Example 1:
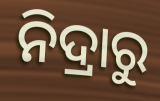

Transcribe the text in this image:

ନିଦ୍ରାରୁ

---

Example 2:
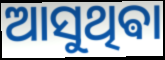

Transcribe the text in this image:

ଆସୁଥିଵା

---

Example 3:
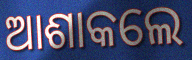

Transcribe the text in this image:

ଆଶାକଲେ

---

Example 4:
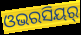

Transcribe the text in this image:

ଓଭରସିୟର୍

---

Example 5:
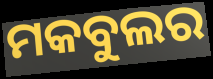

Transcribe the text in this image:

ମକବୁଲର